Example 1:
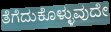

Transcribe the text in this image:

ತೆಗೆದುಕೊಳ್ಳುವುದೇ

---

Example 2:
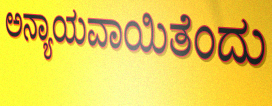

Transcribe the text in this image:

ಅನ್ಯಾಯವಾಯಿತೆಂದು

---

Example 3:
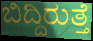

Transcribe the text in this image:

ಬಿದ್ದಿರುತ್ತೆ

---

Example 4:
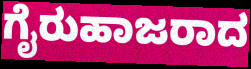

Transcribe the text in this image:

ಗೈರುಹಾಜರಾದ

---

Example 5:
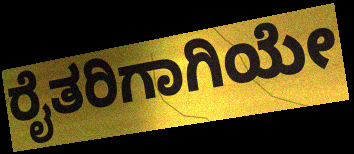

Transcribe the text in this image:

ರೈತರಿಗಾಗಿಯೇ